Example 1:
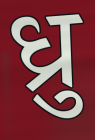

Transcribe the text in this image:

ध्रु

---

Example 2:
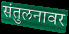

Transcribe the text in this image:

संतुलनावर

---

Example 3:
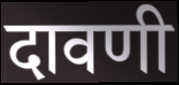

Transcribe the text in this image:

दावणी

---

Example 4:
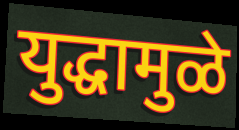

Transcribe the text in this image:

युद्धामुळे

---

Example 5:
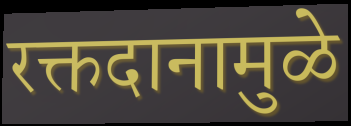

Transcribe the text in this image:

रक्तदानामुळे